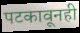
पटकावूनही